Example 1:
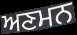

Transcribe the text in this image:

ਅਣਮਨ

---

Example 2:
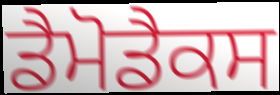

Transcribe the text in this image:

ਡੈਮੋਡੈਕਸ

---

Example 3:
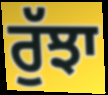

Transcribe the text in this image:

ਰੁੱਝਾ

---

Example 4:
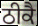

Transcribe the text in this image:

ਠੀਕੈ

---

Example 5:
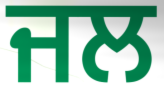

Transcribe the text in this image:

ਜਲ